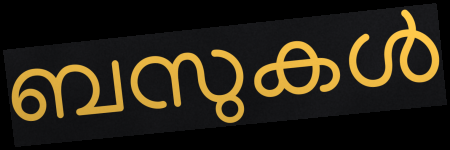
ബസുകൾ